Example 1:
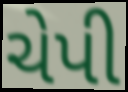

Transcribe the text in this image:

ચેપી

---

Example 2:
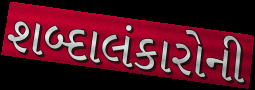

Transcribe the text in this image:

શબ્દાલંકારોની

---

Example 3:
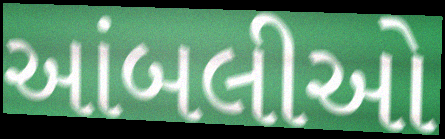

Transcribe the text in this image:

આંબલીઓ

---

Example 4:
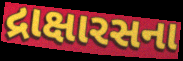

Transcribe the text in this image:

દ્રાક્ષારસના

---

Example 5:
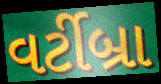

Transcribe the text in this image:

વર્ટીબ્રા